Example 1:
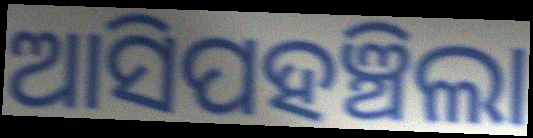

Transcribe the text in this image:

ଆସିପହଞ୍ଚିଲା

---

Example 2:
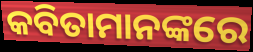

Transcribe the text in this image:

କବିତାମାନଙ୍କରେ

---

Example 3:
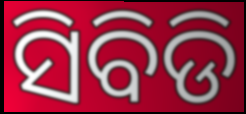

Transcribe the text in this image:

ସିବିଡି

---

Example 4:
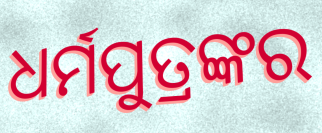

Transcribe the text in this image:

ଧର୍ମପୁତ୍ରଙ୍କର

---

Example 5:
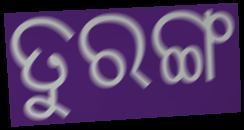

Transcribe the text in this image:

ତୁରଙ୍ଗ